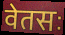
वेतसः